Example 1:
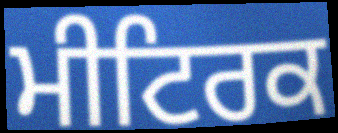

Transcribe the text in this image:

ਮੀਟਿਰਕ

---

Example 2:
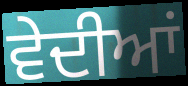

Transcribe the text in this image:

ਵੇਦੀਆਂ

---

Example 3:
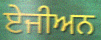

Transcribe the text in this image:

ਏਜੀਅਨ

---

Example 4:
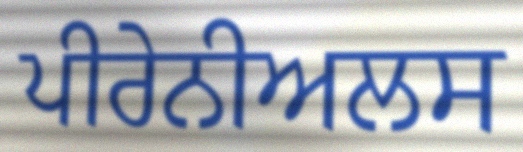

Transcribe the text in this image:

ਪੀਰੇਨੀਅਲਸ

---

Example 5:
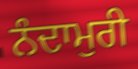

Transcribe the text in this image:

ਨੰਦਾਮੁਰੀ